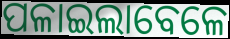
ପଳାଇଲାବେଳେ